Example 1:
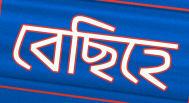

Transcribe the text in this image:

বেছিহে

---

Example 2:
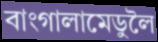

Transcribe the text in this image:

বাংগালামেডুলৈ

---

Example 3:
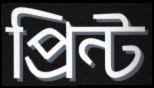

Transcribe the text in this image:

প্ৰিন্ট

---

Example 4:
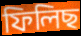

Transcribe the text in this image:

ফিলিছ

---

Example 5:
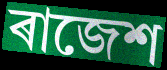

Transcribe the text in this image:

ৰাজেশ